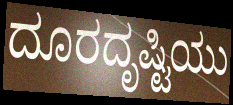
ದೂರದೃಷ್ಟಿಯು